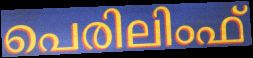
പെരിലിംഫ്